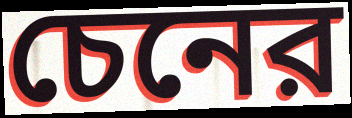
চেনের